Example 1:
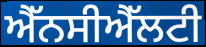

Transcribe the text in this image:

ਐੱਨਸੀਐੱਲਟੀ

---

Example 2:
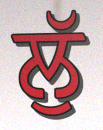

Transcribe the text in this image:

ਲੁੱ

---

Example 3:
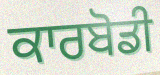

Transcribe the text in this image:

ਕਾਰਬੋਡੀ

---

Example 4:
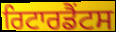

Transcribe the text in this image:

ਰਿਟਾਰਡੈਂਟਸ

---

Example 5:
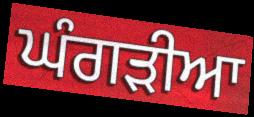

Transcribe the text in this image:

ਘੰਗੜੀਆ